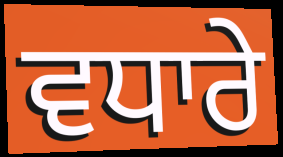
ਵਧਾਰੇ